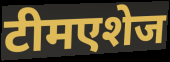
टीमएशेज